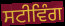
ਸਟੀਵਿੰਗ